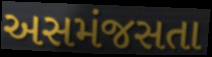
અસમંજસતા